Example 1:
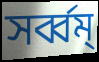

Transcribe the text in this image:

সৰ্ব্বম্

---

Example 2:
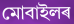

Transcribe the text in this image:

মোবাইলৰ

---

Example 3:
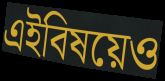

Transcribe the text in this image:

এইবিষয়েও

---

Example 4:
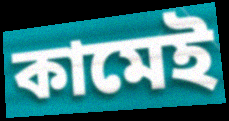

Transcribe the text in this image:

কামেই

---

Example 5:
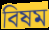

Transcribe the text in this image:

বিষম